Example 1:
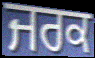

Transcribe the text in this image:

ਜਰਕ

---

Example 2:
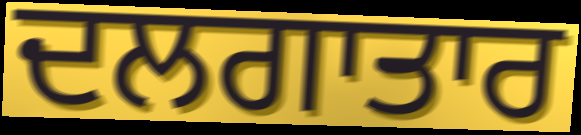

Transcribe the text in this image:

ਦਲਗਾਤਾਰ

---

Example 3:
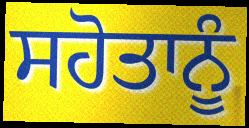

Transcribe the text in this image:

ਸਹੋਤਾਨੂੰ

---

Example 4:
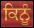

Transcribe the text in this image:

ਕਿਨੂੰ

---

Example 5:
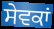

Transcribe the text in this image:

ਸੇਵਕਾਂ